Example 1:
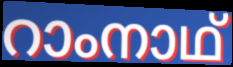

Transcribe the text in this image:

റാംനാഥ്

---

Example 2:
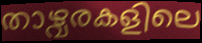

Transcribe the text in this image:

താഴ്വരകളിലെ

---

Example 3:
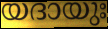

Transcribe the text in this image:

യദായുഃ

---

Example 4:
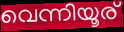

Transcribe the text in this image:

വെന്നിയൂര്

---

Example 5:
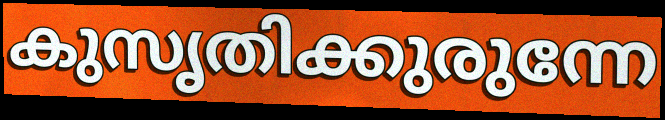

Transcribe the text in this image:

കുസൃതിക്കുരുന്നേ